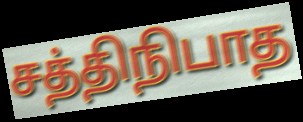
சத்திநிபாத